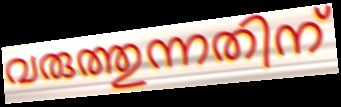
വരുത്തുന്നതിന്